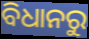
ବିଧାନରୁ